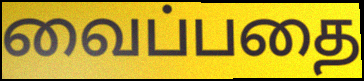
வைப்பதை